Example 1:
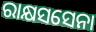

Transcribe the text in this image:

ରାକ୍ଷସସେନା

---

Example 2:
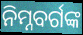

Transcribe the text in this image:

ନିମ୍ନବର୍ଗଙ୍କ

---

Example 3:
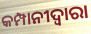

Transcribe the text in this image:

କମ୍ପାନୀଦ୍ୱାରା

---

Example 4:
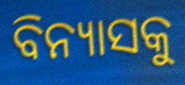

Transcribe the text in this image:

ବିନ୍ୟାସକୁ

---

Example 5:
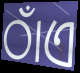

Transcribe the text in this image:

ଠାଁଏ